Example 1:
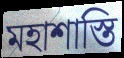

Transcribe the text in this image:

মহাশাস্তি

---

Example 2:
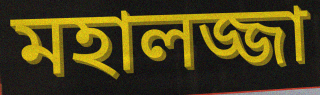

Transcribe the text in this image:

মহালজ্জা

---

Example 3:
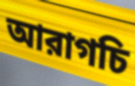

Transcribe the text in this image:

আরাগচি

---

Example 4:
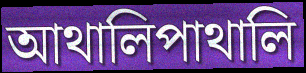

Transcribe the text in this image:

আথালিপাথালি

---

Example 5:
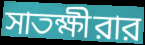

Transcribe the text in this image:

সাতক্ষীরার